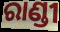
ରାଣ୍ଡୀ